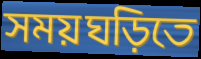
সময়ঘড়িতে